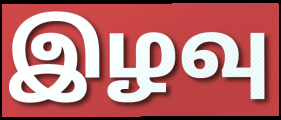
இழவு